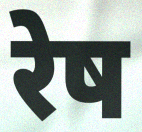
रेष